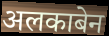
अलकाबेन